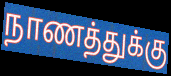
நாணத்துக்கு